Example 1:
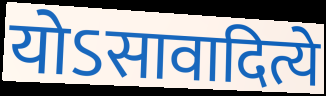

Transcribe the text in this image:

योऽसावादित्ये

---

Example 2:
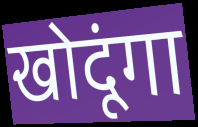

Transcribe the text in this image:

खोदूंगा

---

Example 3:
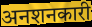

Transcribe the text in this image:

अनशनकारी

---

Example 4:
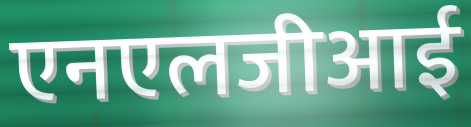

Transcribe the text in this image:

एनएलजीआई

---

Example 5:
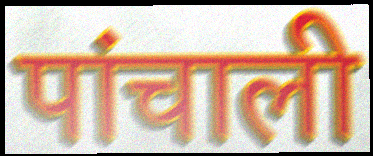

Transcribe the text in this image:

पांचाली